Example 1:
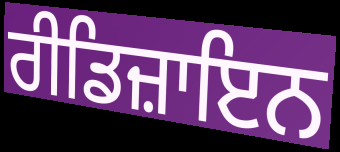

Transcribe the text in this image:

ਰੀਡਿਜ਼ਾਇਨ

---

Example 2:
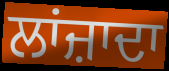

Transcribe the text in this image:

ਲਾਂਜ਼ਾਦਾ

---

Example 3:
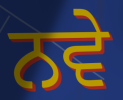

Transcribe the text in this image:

ਨਵੇ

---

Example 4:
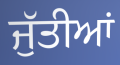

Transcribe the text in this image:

ਜੁੱਤੀਆਂ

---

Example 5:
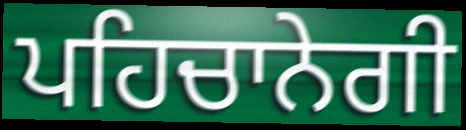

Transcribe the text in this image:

ਪਹਿਚਾਨੇਗੀ